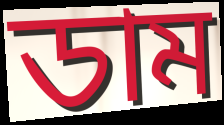
ডাম